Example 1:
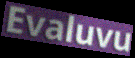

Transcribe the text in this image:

Evaluvu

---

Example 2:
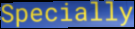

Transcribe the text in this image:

Specially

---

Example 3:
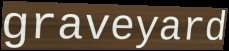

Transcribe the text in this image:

graveyard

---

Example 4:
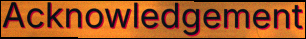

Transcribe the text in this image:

Acknowledgement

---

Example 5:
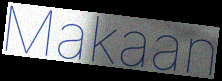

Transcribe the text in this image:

Makaan